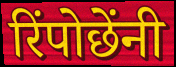
रिंपोछेंनी